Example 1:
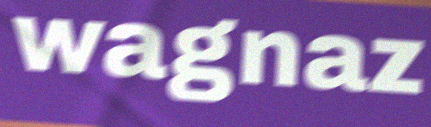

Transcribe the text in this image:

wagnaz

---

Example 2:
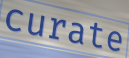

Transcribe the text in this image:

curate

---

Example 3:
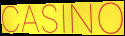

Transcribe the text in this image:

CASINO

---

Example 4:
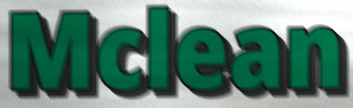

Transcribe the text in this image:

Mclean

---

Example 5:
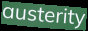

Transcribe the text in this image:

austerity